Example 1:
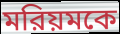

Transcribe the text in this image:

মরিয়মকে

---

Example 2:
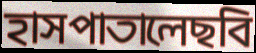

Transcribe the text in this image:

হাসপাতালেছবি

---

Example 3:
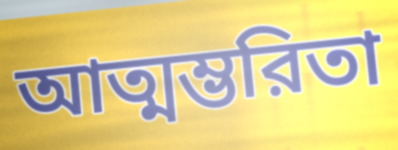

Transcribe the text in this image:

আত্মম্ভরিতা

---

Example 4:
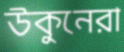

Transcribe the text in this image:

উকুনেরা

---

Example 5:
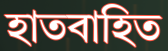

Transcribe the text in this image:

হাতবাহিত